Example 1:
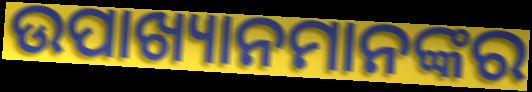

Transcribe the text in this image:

ଉପାଖ୍ୟାନମାନଙ୍କର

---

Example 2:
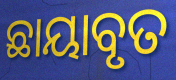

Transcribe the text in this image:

ଛାୟାବୃତ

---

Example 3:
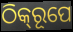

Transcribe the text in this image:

ଠିକ୍‌ରୂପେ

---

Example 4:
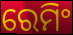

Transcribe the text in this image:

ରେମିଂ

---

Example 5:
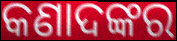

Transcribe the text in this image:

କଣାଦଙ୍କର